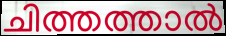
ചിത്തത്താൽ